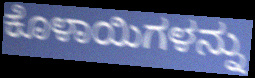
ಕೊಳಾಯಿಗಳನ್ನು